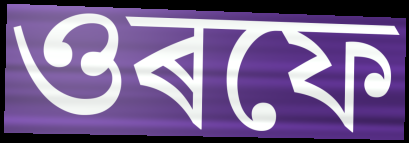
ওৰফে